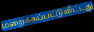
மறைக்கப்பட்டுவிட்டது